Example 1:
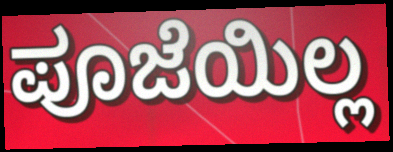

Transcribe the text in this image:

ಪೂಜೆಯಿಲ್ಲ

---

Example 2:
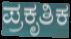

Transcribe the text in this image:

ಪ್ರಕೃತಿಕ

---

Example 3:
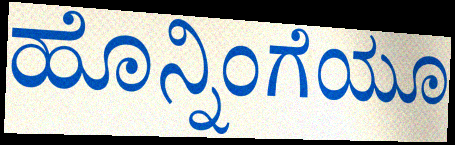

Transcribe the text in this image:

ಹೊನ್ನಿಂಗೆಯೂ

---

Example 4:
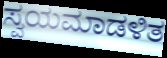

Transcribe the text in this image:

ಸ್ವಯಮಾಡಳಿತ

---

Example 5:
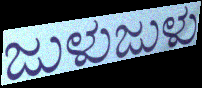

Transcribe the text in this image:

ಜುಳುಜುಳು